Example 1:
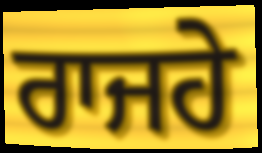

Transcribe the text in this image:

ਰਾਜਹੇ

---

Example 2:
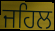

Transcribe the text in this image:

ਜਹਿਲ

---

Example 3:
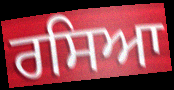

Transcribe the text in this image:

ਰਸਿਆ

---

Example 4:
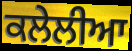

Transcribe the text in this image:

ਕਲੇਲੀਆ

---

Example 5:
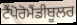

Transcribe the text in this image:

ਟੈਂਪੋਰੋਮੈਂਡੀਬੂਲਰ